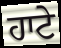
ਹਾਟੇ